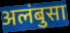
अलंबुसा